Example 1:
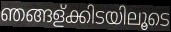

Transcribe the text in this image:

ഞങ്ങള്ക്കിടയിലൂടെ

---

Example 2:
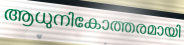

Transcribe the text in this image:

ആധുനികോത്തരമായി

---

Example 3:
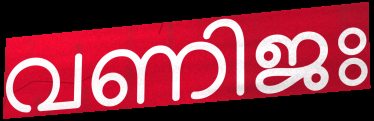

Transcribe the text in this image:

വണിജഃ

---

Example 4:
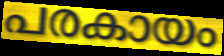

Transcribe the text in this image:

പരകായം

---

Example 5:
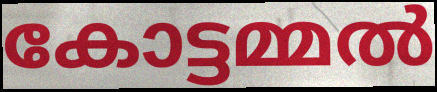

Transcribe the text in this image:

കോട്ടമ്മൽ